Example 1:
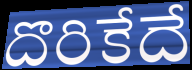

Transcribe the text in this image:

దొరికేదే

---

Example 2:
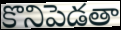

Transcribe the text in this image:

కొనిపెడతా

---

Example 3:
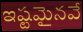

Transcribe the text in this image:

ఇష్టమైనవే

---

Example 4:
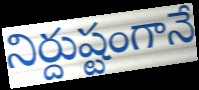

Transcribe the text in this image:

నిర్దుష్టంగానే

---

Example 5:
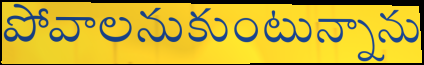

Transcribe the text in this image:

పోవాలనుకుంటున్నాను